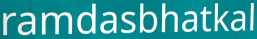
ramdasbhatkal